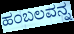
ಹಂಬಲವನ್ನ